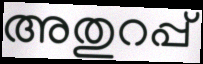
അതുറപ്പ്